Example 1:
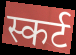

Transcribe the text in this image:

स्कर्ट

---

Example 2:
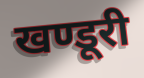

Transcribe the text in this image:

खण्डूरी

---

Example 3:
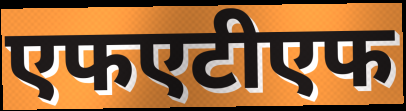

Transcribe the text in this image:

एफएटीएफ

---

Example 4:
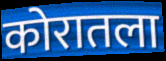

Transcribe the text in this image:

कोरातला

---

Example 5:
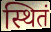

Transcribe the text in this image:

स्थितं